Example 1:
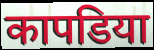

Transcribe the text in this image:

कापडिया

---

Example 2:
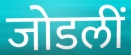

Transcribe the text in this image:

जोडलीं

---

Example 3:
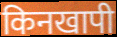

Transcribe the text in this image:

किनखापी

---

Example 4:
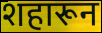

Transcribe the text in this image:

शहारून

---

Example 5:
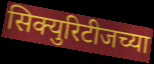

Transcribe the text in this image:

सिक्युरिटीजच्या